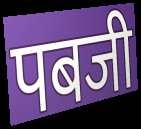
पबजी